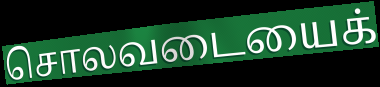
சொலவடையைக்